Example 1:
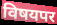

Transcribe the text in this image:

विषयपर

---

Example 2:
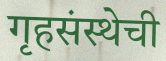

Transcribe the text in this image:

गृहसंस्थेची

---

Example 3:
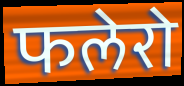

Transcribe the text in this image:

फलेरो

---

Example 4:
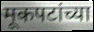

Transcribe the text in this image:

मूकपटांच्या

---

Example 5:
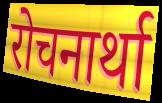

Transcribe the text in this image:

रोचनार्था